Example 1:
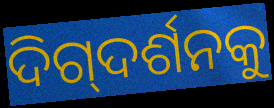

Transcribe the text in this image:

ଦିଗ୍‌ଦର୍ଶନକୁ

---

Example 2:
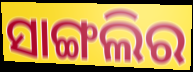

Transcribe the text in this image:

ସାଙ୍ଗଲିର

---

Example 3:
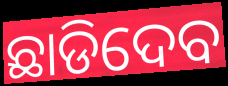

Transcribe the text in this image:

ଛାଡିଦେବ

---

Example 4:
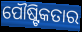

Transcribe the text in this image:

ପୌଷ୍ଟିକତାର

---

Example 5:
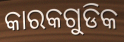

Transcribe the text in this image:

କାରକଗୁଡିକ